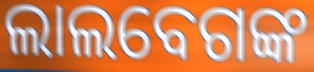
ଲାଲବେଗଙ୍କ